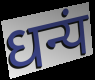
धन्यं